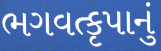
ભગવત્કૃપાનું